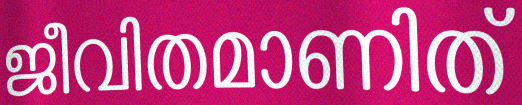
ജീവിതമാണിത്